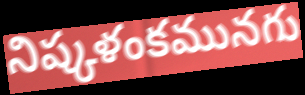
నిష్కళంకమునగు